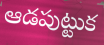
ఆడపుట్టుక